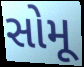
સોમૂ